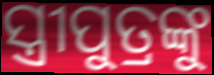
ସ୍ତ୍ରୀପୁତ୍ରଙ୍କୁ